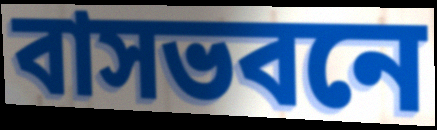
বাসভবনে